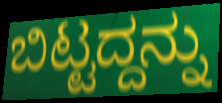
ಬಿಟ್ಟದ್ದನ್ನು